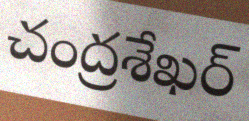
చంద్రశేఖర్